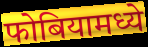
फोबियामध्ये